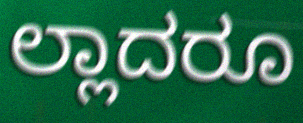
ಲ್ಲಾದರೂ